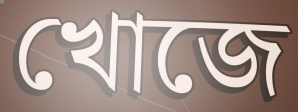
খোজে